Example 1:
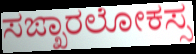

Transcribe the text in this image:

ಸಙ್ಖಾರಲೋಕಸ್ಸ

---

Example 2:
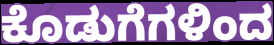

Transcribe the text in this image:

ಕೊಡುಗೆಗಳಿಂದ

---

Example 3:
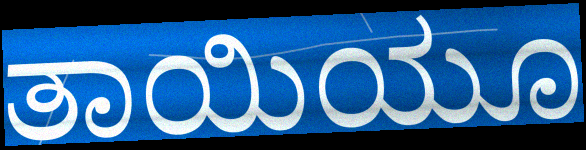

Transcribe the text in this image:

ತಾಯಿಯೂ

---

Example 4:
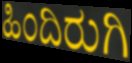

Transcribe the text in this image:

ಹಿಂದಿರುಗಿ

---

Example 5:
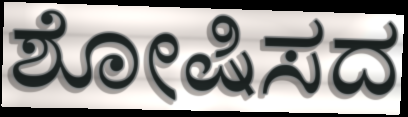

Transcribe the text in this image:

ಶೋಷಿಸದ